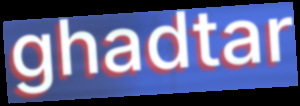
ghadtar